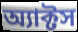
অ্যাক্টস